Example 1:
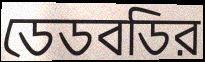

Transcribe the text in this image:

ডেডবডির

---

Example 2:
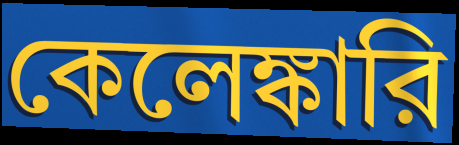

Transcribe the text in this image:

কেলেঙ্কারি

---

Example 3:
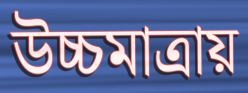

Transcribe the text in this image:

উচ্চমাত্রায়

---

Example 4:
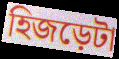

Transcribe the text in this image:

হিজড়েটা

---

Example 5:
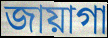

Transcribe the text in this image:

জায়াগা